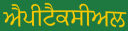
ਐਪੀਟੈਕਸੀਅਲ